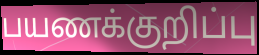
பயணக்குறிப்பு